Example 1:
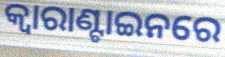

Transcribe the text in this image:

କ୍ବାରାଣ୍ଟାଇନରେ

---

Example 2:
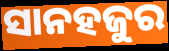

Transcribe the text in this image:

ସାନହଜୁର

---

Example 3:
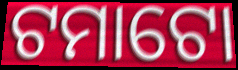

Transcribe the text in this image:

ଟମାଟୋ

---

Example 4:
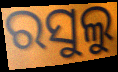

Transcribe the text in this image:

ରସୁଲୁ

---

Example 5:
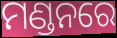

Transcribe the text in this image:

ମଣ୍ଡନରେ